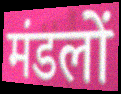
मंडलों